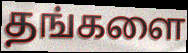
தங்களை